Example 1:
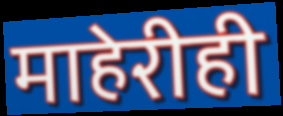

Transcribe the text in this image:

माहेरीही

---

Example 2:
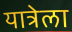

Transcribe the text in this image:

यात्रेला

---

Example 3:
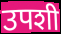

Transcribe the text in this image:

उपशी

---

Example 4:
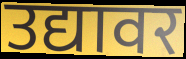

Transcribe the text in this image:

उद्यावर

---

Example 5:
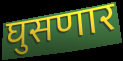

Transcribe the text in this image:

घुसणार